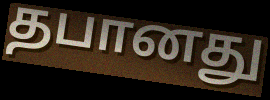
தபானது